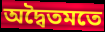
অদ্বৈতমতে